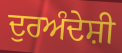
ਦੁਰਅੰਦੇਸ਼ੀ